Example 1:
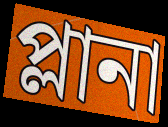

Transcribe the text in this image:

প্লানা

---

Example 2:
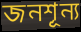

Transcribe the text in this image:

জনশূন্য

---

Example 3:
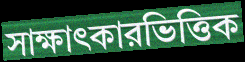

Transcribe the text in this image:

সাক্ষাৎকারভিত্তিক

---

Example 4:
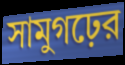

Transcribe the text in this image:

সামুগঢ়ের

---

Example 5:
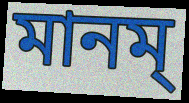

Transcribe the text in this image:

মানম্